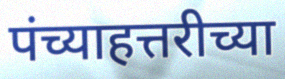
पंच्याहत्तरीच्या